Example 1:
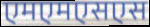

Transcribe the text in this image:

एमएमएसएस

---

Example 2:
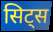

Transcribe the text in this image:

सिट्स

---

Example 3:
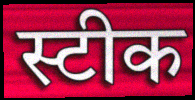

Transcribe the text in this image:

स्टीक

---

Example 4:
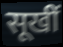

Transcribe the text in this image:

सूखीं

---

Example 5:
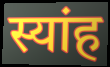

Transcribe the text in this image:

स्यांह